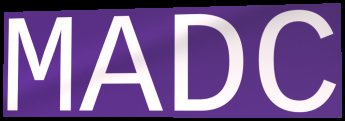
MADC